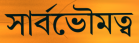
সাৰ্বভৌমত্ব